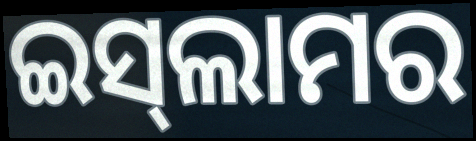
ଇସ୍‍ଲାମର